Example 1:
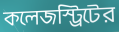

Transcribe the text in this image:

কলেজস্ট্রিটের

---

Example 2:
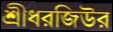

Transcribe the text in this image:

শ্রীধরজিউর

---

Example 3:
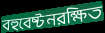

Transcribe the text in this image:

বহুবেষ্টনরক্ষিত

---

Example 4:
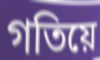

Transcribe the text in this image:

গতিয়ে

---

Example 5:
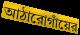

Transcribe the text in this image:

আঠারোগাঁয়ের